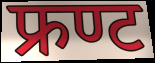
फ्रण्ट